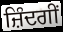
ਜ਼ਿੰਦਗੀਂ